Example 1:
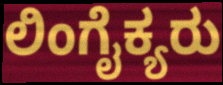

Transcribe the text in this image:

ಲಿಂಗೈಕ್ಯರು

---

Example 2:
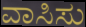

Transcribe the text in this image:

ವಾಸಿಸು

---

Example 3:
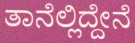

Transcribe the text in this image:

ತಾನೆಲ್ಲಿದ್ದೇನೆ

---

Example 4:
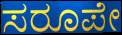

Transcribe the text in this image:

ಸರೂಪೇ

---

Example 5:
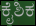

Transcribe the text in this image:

ಕೈಶಿಕ